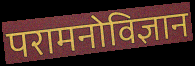
परामनोविज्ञान